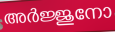
അർജ്ജുനോ